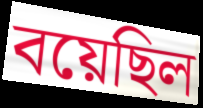
বয়েছিল